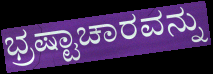
ಭ್ರಷ್ಟಾಚಾರವನ್ನು